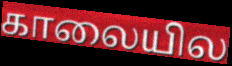
காலையில